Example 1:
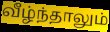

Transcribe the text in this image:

வீழ்ந்தாலும்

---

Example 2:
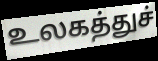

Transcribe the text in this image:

உலகத்துச்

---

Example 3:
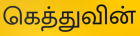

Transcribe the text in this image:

கெத்துவின்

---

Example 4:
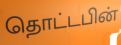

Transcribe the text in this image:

தொட்டபின்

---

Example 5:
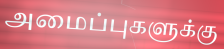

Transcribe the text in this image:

அமைப்புகளுக்கு